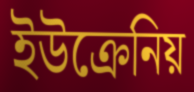
ইউক্রেনিয়